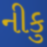
નીકુ